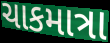
ચાકમાત્રા